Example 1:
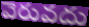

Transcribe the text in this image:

వెరువదు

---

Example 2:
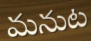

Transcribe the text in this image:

మనుట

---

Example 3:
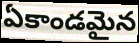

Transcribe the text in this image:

ఏకాండమైన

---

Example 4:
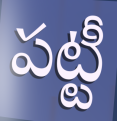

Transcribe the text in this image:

పట్టీ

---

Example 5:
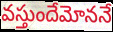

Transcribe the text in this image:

వస్తుందేమోననే